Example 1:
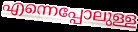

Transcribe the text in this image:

എന്നെപ്പോലുള്ള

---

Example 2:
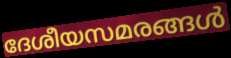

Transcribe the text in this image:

ദേശീയസമരങ്ങൾ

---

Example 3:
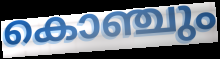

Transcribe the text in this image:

കൊഞ്ചും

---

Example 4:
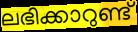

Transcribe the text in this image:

ലഭിക്കാറുണ്ട്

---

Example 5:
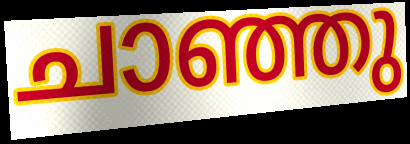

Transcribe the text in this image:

ചാഞ്ഞു